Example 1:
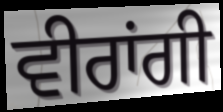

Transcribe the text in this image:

ਵੀਰਾਂਗੀ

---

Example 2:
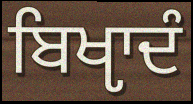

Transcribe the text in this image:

ਬਿਖੵਾਦੰ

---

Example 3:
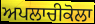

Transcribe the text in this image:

ਅਪਲਾਚੀਕੋਲਾ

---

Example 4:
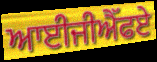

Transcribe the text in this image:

ਆਈਜੀਐੱਫਏ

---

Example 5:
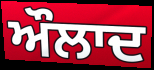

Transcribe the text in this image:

ਔਲਾਦ